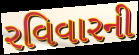
રવિવારની